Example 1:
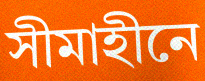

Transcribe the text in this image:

সীমাহীনে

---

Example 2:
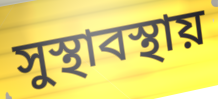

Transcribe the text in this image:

সুস্থাবস্থায়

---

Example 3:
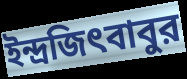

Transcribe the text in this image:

ইন্দ্রজিৎবাবুর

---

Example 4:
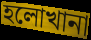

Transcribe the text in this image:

হলোখানা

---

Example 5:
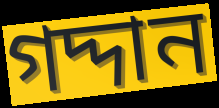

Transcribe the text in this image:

গদ্দান